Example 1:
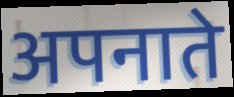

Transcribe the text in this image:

अपनाते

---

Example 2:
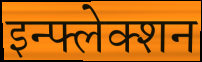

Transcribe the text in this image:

इन्फ्लेक्शन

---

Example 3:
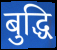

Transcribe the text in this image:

बुद्धि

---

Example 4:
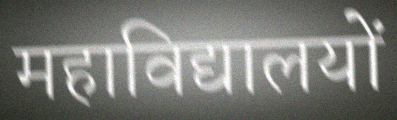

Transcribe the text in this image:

महाविद्यालयों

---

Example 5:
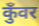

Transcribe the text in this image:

कुँवर